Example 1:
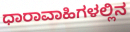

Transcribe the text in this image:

ಧಾರಾವಾಹಿಗಳಲ್ಲಿನ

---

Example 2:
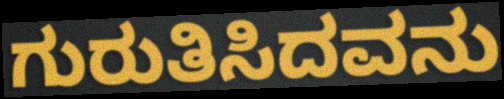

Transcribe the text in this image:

ಗುರುತಿಸಿದವನು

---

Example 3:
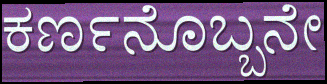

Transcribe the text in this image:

ಕರ್ಣನೊಬ್ಬನೇ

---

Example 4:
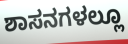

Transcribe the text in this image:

ಶಾಸನಗಳಲ್ಲೂ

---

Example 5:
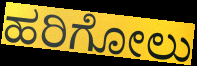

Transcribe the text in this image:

ಹರಿಗೋಲು